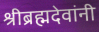
श्रीब्रह्मदेवांनी